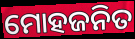
ମୋହଜନିତ